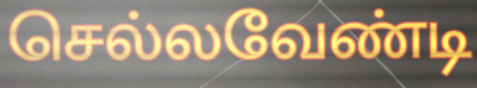
செல்லவேண்டி